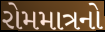
રોમમાત્રનો